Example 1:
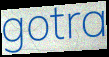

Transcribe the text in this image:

gotra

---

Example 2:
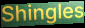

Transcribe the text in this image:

Shingles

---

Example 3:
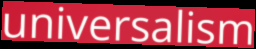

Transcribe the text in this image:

universalism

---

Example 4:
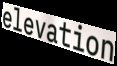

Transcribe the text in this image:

elevation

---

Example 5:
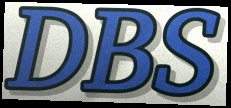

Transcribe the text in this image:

DBS